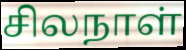
சிலநாள்